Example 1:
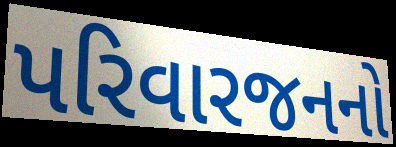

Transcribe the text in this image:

પરિવારજનનો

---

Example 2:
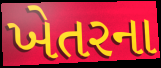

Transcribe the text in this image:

ખેતરના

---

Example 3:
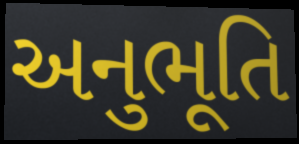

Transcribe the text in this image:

અનુભૂતિ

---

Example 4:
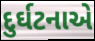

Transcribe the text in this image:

દુર્ઘટનાએ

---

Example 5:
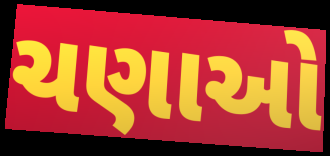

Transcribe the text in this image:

ચણાઓ